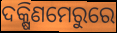
ଦକ୍ଷିଣମେରୁରେ